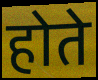
होते